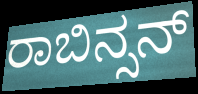
ರಾಬಿನ್ಸನ್